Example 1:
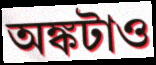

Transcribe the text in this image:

অঙ্কটাও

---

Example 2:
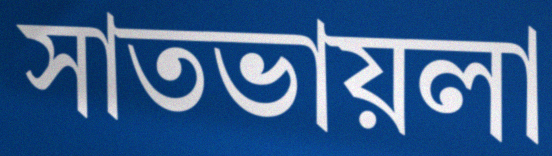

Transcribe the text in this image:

সাতভায়লা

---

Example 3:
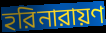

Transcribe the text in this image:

হরিনারায়ণ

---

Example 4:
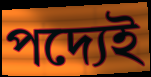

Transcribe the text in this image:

পদ্যেই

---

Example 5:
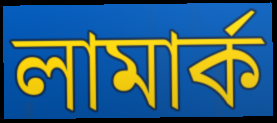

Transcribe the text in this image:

লামার্ক